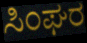
ಸಿಂಘರ